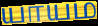
யாயம